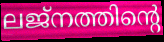
ലജ്നത്തിന്റെ